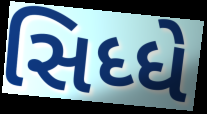
સિધ્ધે